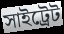
সাইট্রেট